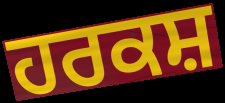
ਹਰਕਸ਼